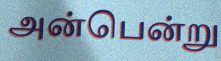
அன்பென்று